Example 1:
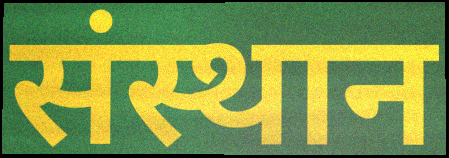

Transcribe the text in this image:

संस्थान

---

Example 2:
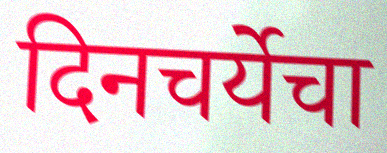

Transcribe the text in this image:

दिनचर्येचा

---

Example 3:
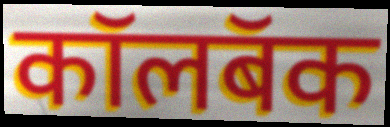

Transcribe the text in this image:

कॉलबॅक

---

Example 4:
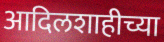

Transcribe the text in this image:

आदिलशाहीच्या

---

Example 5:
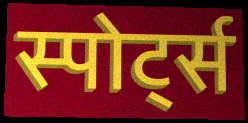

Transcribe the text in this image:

स्पोर्ट्स